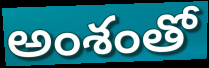
అంశంతో